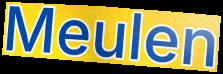
Meulen